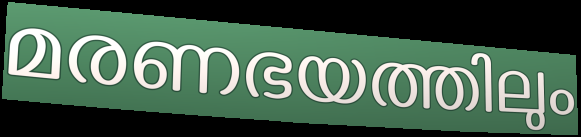
മരണഭയത്തിലും